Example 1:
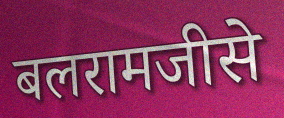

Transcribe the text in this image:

बलरामजीसे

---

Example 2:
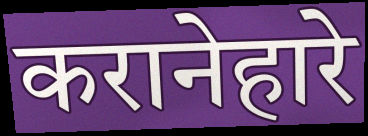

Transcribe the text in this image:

करानेहारे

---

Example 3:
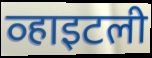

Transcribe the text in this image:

व्हाइटली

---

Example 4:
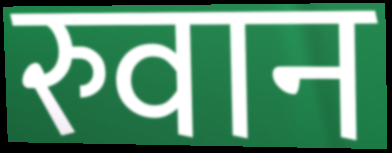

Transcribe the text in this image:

रुवान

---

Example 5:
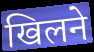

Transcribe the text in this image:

खिलने